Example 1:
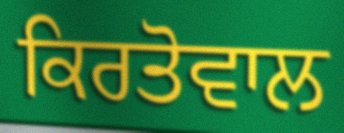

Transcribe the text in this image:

ਕਿਰਤੋਵਾਲ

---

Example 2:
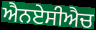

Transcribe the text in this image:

ਐਨਏਸੀਐਚ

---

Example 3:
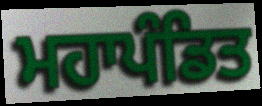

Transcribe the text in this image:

ਮਹਾਪੰਡਿਤ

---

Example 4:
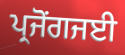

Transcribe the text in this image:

ਪ੍ਰਜੋਂਗਜਈ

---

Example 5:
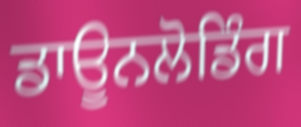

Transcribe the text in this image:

ਡਾਊਨਲੋਡਿੰਗ